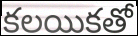
కలయికతో